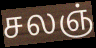
சலஞ்